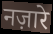
नज़ारे